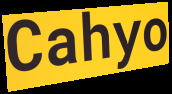
Cahyo